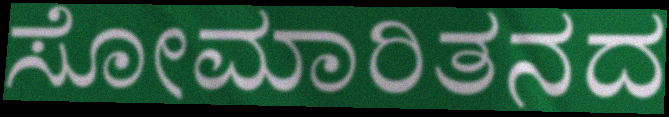
ಸೋಮಾರಿತನದ